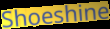
Shoeshine